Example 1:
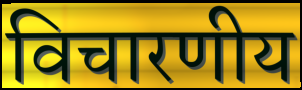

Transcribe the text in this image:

विचारणीय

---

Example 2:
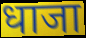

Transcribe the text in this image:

धाजा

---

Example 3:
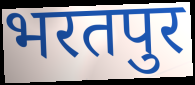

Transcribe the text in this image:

भरतपुर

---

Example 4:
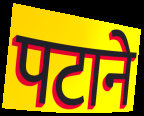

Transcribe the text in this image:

पटाने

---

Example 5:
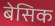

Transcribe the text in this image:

बेसिक